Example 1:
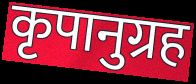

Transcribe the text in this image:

कृपानुग्रह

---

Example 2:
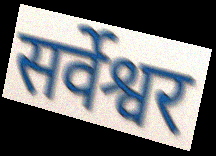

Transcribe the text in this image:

सर्वेश्वर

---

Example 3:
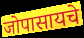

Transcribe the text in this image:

जोपासायचे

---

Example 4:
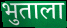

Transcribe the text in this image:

भुताला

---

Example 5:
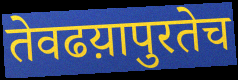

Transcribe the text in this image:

तेवढय़ापुरतेच